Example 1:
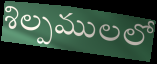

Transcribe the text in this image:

శిల్పములలో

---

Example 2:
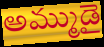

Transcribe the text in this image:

అమ్ముడై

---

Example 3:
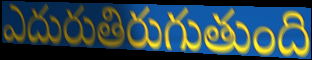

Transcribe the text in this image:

ఎదురుతిరుగుతుంది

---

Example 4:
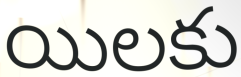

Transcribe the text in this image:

యిలకు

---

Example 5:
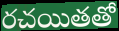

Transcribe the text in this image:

రచయితతో